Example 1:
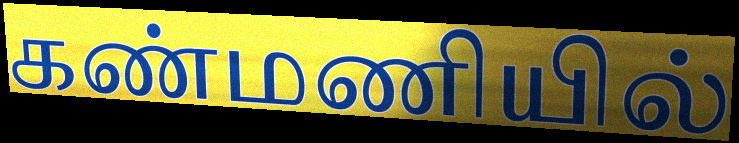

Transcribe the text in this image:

கண்மணியில்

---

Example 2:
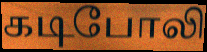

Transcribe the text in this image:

கடிபோலி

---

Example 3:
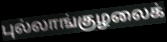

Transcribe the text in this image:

புல்லாங்குழலைக்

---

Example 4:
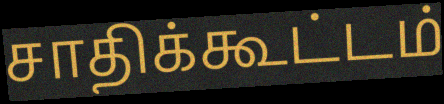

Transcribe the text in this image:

சாதிக்கூட்டம்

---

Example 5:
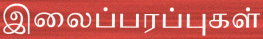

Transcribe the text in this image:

இலைப்பரப்புகள்